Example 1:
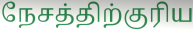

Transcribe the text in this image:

நேசத்திற்குரிய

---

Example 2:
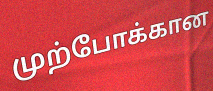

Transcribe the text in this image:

முற்போக்கான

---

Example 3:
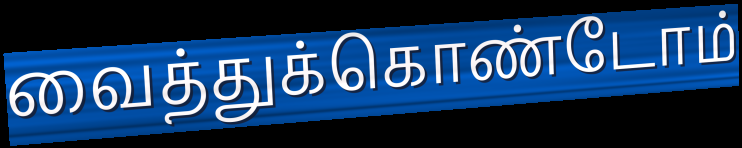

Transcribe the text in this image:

வைத்துக்கொண்டோம்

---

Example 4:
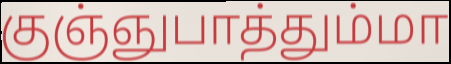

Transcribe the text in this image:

குஞ்ஞுபாத்தும்மா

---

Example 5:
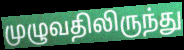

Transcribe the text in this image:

முழுவதிலிருந்து